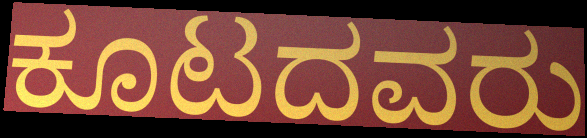
ಕೂಟದವರು